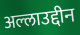
अल्लाउद्दीन